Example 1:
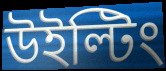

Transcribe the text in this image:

উইল্টিং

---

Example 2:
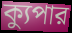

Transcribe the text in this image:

ক্যুপার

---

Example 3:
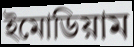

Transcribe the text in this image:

ইমোডিয়াম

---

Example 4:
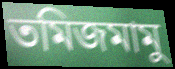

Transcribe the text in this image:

তমিজমামু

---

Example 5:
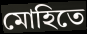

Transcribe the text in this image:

মোহিতে